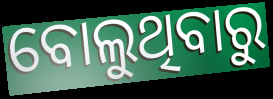
ବୋଲୁଥିବାରୁ